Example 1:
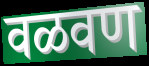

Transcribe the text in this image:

वळवण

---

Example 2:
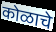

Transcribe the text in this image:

कोळाचे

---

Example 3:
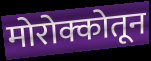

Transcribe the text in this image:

मोरोक्कोतून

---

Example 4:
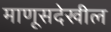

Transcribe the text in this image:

माणूसदेखील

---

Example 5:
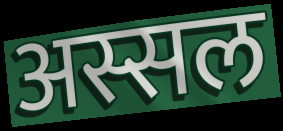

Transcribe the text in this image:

अस्सल